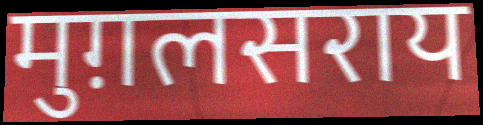
मुग़लसराय